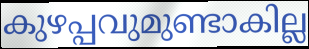
കുഴപ്പവുമുണ്ടാകില്ല